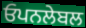
ਓਪਨਲੇਬਲ